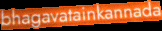
bhagavatainkannada